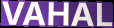
VAHAL